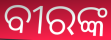
ବୀରଙ୍କ